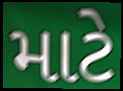
માટે